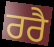
ਰਰੈ